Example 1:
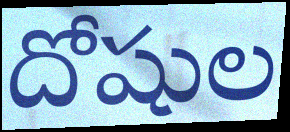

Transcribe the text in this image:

దోషుల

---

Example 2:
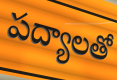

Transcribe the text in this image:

పద్యాలతో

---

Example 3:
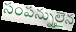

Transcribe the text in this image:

సంపన్నులైన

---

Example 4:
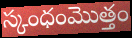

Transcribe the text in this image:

స్కంధంమొత్తం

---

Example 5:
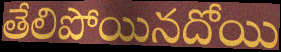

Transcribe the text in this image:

తేలిపోయినదోయి